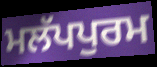
ਮਲੱਪਪੁਰਮ